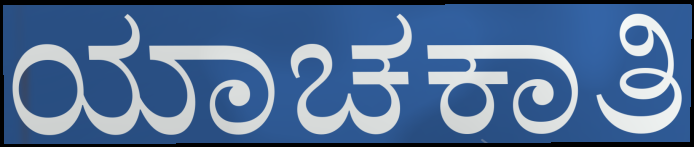
ಯಾಚಕಾತಿ